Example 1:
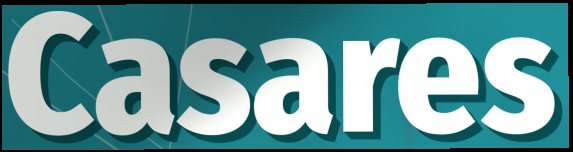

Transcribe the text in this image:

Casares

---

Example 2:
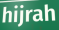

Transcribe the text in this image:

hijrah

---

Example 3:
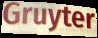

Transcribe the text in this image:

Gruyter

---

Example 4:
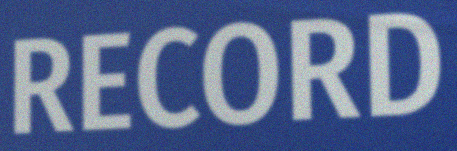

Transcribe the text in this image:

RECORD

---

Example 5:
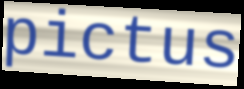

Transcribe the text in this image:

pictus